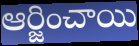
ఆర్జించాయి